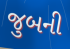
જુબની